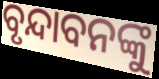
ବୃନ୍ଦାବନଙ୍କୁ